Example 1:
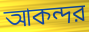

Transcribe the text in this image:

আকন্দর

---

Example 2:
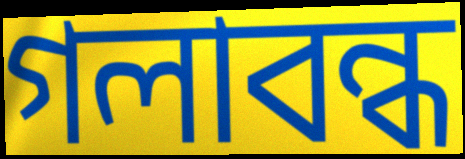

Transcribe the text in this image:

গলাবন্ধ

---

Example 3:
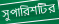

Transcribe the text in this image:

সুপারিশটির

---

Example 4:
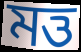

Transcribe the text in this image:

মত্ত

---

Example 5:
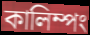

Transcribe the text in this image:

কালিম্পং